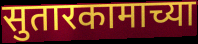
सुतारकामाच्या